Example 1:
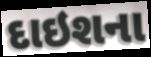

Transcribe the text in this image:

દાઇશના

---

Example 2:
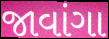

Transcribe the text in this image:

જાવાંગા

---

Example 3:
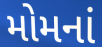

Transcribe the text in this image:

મોમનાં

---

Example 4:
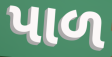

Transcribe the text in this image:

પાળ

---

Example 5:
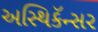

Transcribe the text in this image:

અસ્થિકૅન્સર